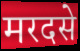
मरदसे